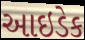
આઇડેક